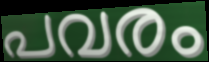
പവരം